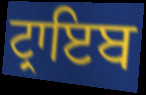
ਟ੍ਰਾਇਬ